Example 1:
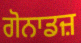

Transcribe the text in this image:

ਗੋਨਾਡਜ਼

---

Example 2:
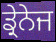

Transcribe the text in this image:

ਡ੍ਰੇਨੇਜ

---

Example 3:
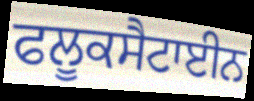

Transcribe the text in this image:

ਫਲੂਕਸੈਟਾਈਨ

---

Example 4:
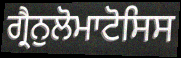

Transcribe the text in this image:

ਗ੍ਰੈਨੁਲੋਮਾਟੋਸਿਸ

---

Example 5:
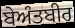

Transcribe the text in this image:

ਬੇਅੰਤਬੀਰ